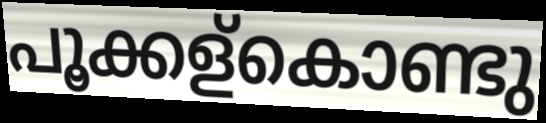
പൂക്കള്കൊണ്ടു